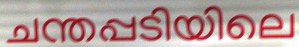
ചന്തപ്പടിയിലെ